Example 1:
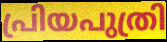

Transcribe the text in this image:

പ്രിയപുത്രി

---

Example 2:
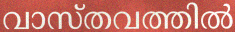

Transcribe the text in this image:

വാസ്തവത്തിൽ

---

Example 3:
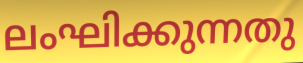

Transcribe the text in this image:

ലംഘിക്കുന്നതു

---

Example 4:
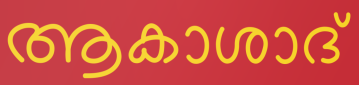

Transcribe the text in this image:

ആകാശാദ്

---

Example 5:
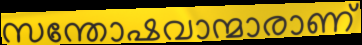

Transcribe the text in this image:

സന്തോഷവാന്മാരാണ്